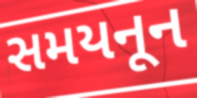
સમયનૂન